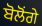
ਬੋਲੋਂਗੇ